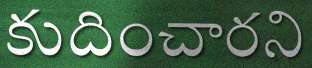
కుదించారని